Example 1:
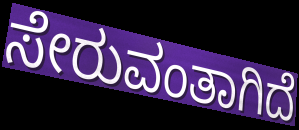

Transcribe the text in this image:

ಸೇರುವಂತಾಗಿದೆ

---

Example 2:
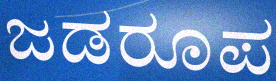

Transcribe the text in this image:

ಜಡರೂಪ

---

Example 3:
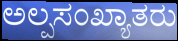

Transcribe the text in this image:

ಅಲ್ಪಸಂಖ್ಯಾತರು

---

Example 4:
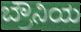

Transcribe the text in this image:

ಬ್ರೌನಿಯ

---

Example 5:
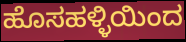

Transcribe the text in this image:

ಹೊಸಹಳ್ಳಿಯಿಂದ